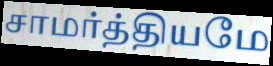
சாமர்த்தியமே